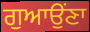
ਗੁਆਉਂਣਾ